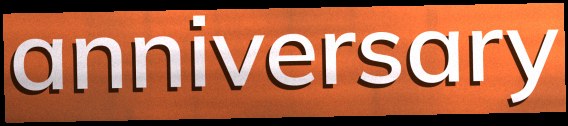
anniversary